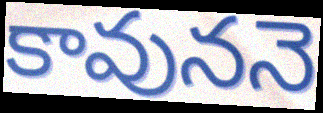
కావుననె